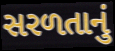
સરળતાનું